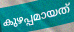
കുഴപ്പമായത്